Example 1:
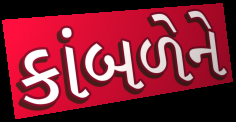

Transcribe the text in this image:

કાંબળેને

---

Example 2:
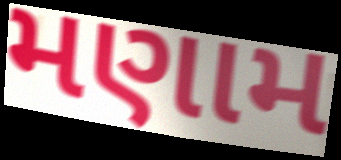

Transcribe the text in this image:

મણામ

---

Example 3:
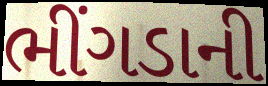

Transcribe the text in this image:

ભીંગડાની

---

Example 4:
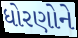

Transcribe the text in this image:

ધોરણોને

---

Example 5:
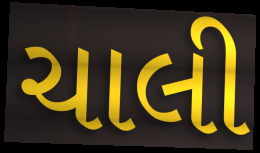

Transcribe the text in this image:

ચાલી